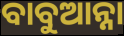
ବାବୁଆନ୍ନା